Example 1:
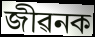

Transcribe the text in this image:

জীৱনক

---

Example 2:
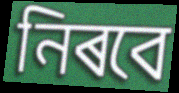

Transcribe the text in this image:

নিৰবে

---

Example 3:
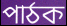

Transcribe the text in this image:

পাঠক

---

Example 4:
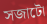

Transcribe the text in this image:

সজাটো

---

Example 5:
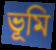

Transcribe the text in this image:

ভূমি